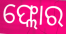
ଫ୍ଲୋର